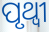
ପୃଥ୍ଵୀ